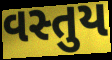
વસ્તુય